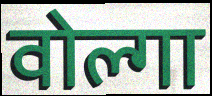
वोल्गा